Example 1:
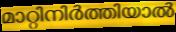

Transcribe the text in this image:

മാറ്റിനിർത്തിയാൽ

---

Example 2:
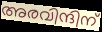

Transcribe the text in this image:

അരവിന്ദിന്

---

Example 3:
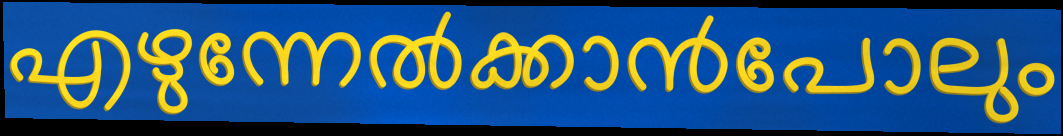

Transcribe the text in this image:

എഴുന്നേൽക്കാൻപോലും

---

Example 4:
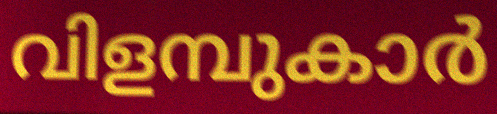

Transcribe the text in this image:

വിളമ്പുകാർ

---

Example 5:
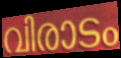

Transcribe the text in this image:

വിരാടം